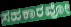
ಸಹಕಾರವೋ